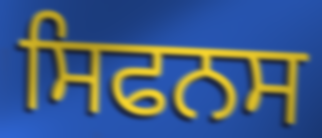
ਸਿਫਨਸ